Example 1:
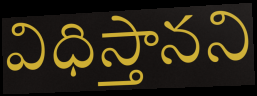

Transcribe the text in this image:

విధిస్తానని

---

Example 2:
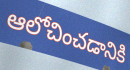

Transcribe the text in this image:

ఆలోచించడానికి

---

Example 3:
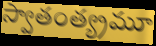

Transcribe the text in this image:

స్వాతంత్య్రమూ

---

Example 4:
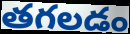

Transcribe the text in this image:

తగలడం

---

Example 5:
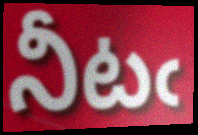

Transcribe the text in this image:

నీటఁ